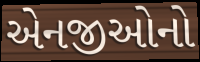
એનજીઓનો